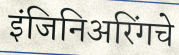
इंजिनिअरिंगचे